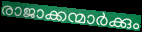
രാജാക്കന്മാർക്കും